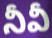
నీవీ